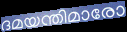
ദമയന്തിമാരോ